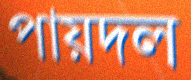
পায়দল